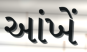
આંખેં